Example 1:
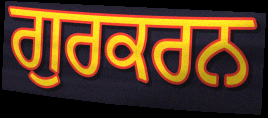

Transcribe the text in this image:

ਗੁਰਕਰਨ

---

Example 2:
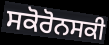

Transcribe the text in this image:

ਸਕੋਰੋਨਸਕੀ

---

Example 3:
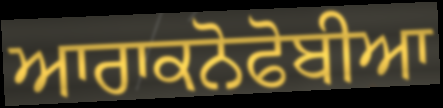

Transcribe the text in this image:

ਆਰਾਕਨੋਫੋਬੀਆ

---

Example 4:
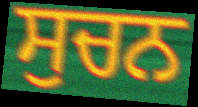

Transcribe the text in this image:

ਸੁਚਨ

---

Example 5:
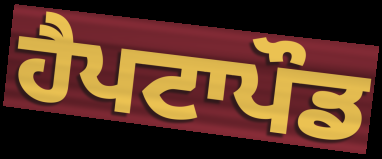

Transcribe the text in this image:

ਹੈਪਟਾਪੌਡ